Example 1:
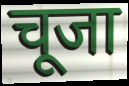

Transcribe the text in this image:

चूजा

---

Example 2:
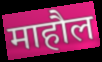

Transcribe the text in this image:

माहौल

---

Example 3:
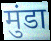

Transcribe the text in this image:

मुंडा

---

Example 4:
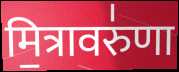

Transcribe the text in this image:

मि॒त्रावरु॑णा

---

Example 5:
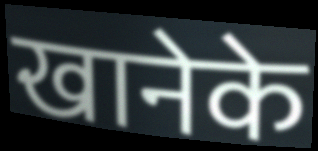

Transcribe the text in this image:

खानेके